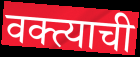
वक्त्याची